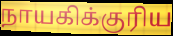
நாயகிக்குரிய